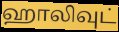
ஹாலிவுட்